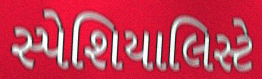
સ્પેશિયાલિસ્ટે